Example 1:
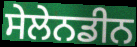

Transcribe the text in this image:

ਸੇਲੇਨਡੀਨ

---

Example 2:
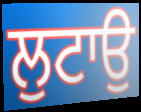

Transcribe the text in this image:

ਲੁਟਾਉ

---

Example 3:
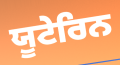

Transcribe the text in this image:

ਯੂਟੇਰਿਨ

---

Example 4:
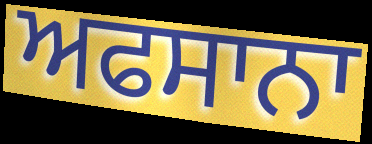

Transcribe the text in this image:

ਅਫਸਾਨਾ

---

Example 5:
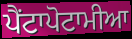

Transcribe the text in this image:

ਪੈਂਟਾਪੋਟਾਮੀਆ